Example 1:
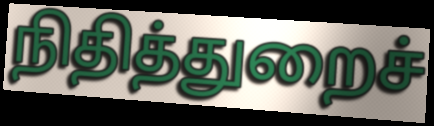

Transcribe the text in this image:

நிதித்துறைச்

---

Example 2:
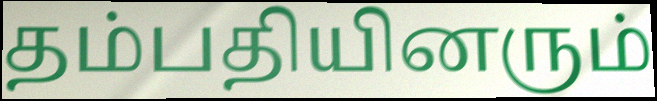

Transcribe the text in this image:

தம்பதியினரும்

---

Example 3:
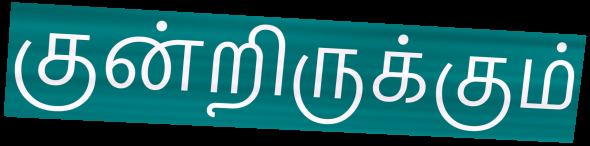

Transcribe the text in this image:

குன்றிருக்கும்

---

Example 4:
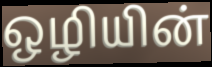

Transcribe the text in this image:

ஒழியின்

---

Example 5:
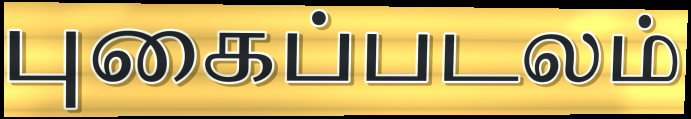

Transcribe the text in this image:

புகைப்படலம்